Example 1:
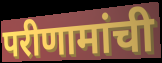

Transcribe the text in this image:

परीणामांची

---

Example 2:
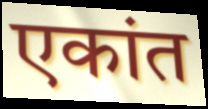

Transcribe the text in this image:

एकांत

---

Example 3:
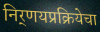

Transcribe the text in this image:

निर्णयप्रक्रियेचा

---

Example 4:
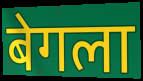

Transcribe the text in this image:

बेगला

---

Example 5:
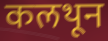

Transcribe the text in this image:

कलथून